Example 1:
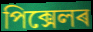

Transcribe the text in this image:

পিক্সেলৰ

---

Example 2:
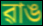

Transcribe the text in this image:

ৱাঙ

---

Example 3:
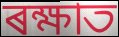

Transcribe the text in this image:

ৰক্ষাত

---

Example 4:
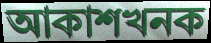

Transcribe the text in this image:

আকাশখনক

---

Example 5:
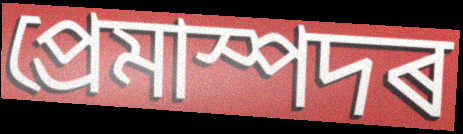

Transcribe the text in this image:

প্ৰেমাস্পদৰ